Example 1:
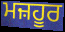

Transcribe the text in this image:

ਮਜ਼ਹੂਰ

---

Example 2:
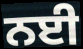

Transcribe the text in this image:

ਨਈ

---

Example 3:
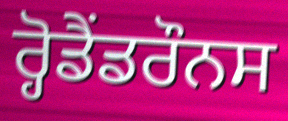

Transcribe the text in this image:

ਰ੍ਹੋਡੈਂਡਰੌਨਸ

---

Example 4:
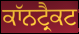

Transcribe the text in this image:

ਕਾੱਨਟ੍ਰੈਕਟ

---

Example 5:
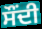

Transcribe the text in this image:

ਸੌਂਦੀ